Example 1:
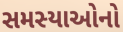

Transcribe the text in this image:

સમસ્યાઓનો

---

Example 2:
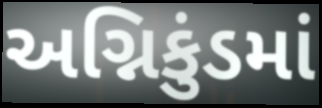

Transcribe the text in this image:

અગ્નિકુંડમાં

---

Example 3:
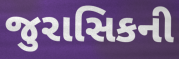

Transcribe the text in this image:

જુરાસિકની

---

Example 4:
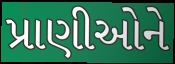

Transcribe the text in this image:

પ્રાણીઓને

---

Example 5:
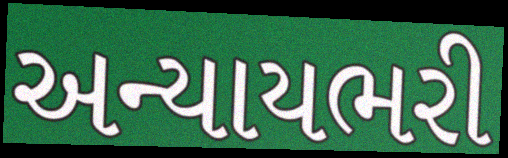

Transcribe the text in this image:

અન્યાયભરી